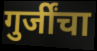
गुर्जींचा